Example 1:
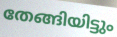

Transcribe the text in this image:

തേങ്ങിയിട്ടും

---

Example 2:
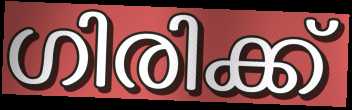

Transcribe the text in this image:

ഗിരിക്ക്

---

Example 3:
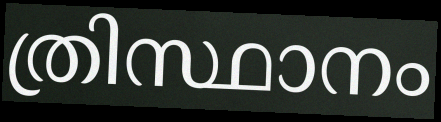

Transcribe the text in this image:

ത്രിസ്ഥാനം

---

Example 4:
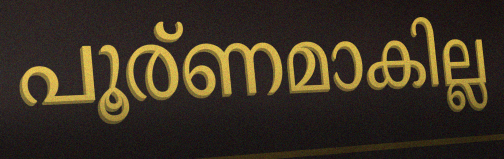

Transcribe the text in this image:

പൂര്ണമാകില്ല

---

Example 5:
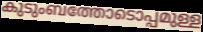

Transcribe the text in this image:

കുടുംബത്തോടൊപ്പമുള്ള